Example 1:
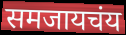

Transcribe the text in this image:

समजायचंय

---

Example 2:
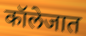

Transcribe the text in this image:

कॉलेजात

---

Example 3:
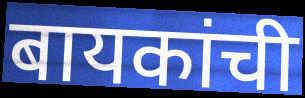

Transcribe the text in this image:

बायकांची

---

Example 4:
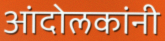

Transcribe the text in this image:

आंदोलकांनी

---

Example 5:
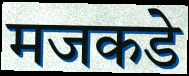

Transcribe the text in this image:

मजकडे